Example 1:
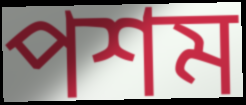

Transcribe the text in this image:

পশম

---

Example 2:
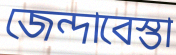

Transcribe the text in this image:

জেন্দাবেস্তা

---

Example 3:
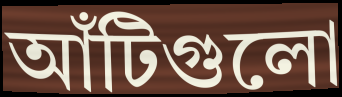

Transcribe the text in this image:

আঁটিগুলো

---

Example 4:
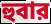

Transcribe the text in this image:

হুবার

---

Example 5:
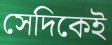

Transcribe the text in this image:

সেদিকেই